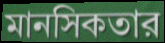
মানসিকতার